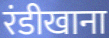
रंडीखाना